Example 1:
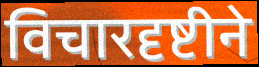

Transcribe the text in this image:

विचारदृष्टीने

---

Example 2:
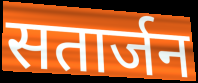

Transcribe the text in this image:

सतार्जन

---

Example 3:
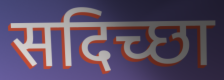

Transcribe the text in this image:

सदिच्छा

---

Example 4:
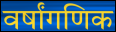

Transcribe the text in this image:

वर्षांगणिक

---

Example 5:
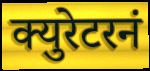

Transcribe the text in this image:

क्युरेटरनं